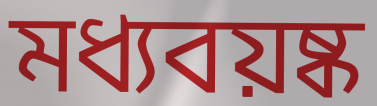
মধ্যবয়ষ্ক